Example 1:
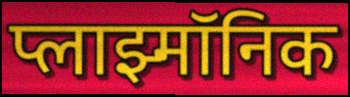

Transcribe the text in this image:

प्लाझ्मॉनिक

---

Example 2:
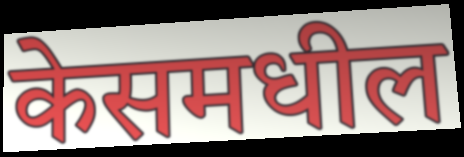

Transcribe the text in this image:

केसमधील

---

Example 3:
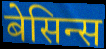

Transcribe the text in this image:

बेसिन्स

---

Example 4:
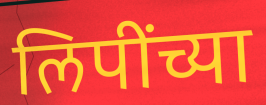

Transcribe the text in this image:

लिपींच्या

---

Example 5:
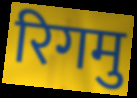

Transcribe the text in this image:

रिगमु